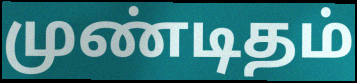
முண்டிதம்